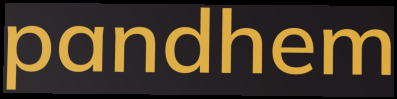
pandhem